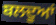
ਬਲਦੂਆਂ